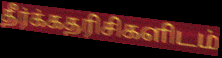
தீர்க்கதரிசிகளிடம்